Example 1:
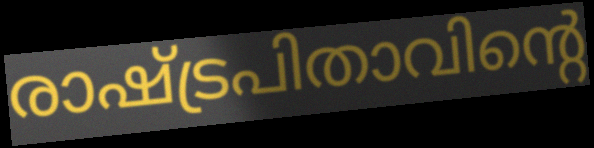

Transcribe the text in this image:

രാഷ്ട്രപിതാവിന്റെ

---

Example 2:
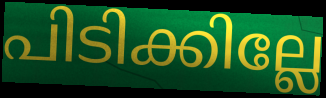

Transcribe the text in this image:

പിടിക്കില്ലേ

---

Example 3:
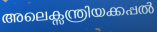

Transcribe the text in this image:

അലെക്സന്ത്രിയക്കപ്പൽ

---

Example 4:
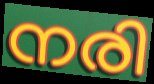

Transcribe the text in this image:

നരി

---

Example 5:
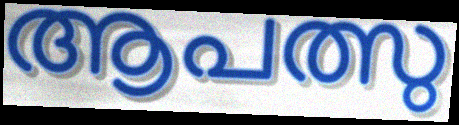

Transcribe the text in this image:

ആപത്സു